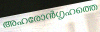
അഹരോൻഗൃഹത്തെ